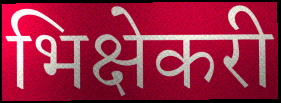
भिक्षेकरी